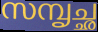
സമ്പൃച്ഛ